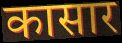
कासार